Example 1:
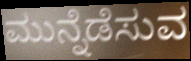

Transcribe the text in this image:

ಮುನ್ನೆಡೆಸುವ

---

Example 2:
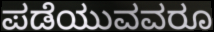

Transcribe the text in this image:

ಪಡೆಯುವವರೂ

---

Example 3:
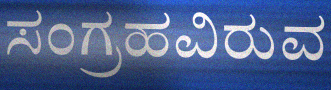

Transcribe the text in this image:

ಸಂಗ್ರಹವಿರುವ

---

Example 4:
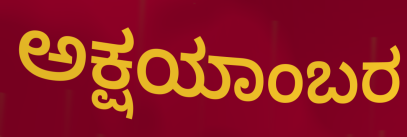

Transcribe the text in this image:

ಅಕ್ಷಯಾಂಬರ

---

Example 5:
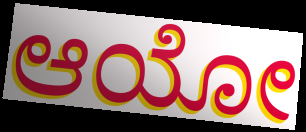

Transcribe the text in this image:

ಆಯೋ